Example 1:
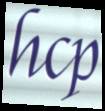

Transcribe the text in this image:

hcp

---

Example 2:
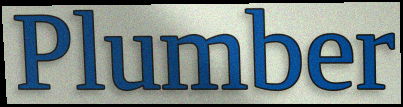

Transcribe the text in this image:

Plumber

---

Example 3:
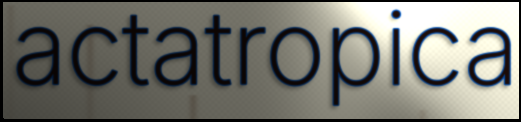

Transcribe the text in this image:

actatropica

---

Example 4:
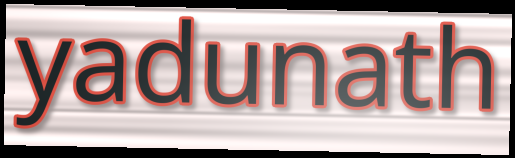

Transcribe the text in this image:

yadunath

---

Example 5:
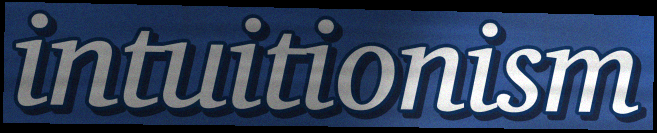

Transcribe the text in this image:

intuitionism